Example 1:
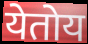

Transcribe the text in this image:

येतोय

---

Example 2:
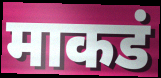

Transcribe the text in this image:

माकडं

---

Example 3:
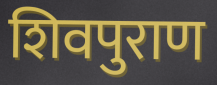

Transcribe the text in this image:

शिवपुराण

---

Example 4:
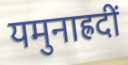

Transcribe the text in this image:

यमुनाह्रदीं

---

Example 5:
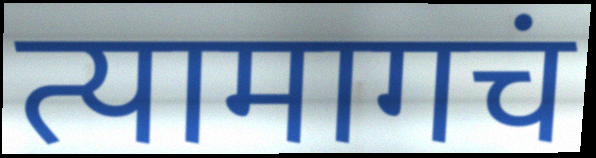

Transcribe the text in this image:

त्यामागचं